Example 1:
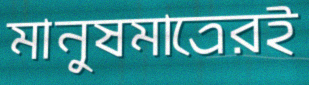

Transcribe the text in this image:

মানুষমাত্রেরই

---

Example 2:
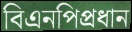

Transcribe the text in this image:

বিএনপিপ্রধান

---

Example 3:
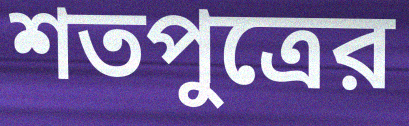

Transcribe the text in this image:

শতপুত্রের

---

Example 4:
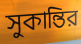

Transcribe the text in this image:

সুকান্তির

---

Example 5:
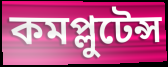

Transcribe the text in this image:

কমপ্লুটেন্স